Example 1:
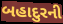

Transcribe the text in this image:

બહાદુરની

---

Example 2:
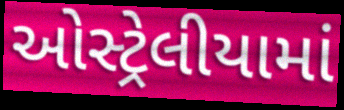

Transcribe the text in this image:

ઓસ્ટ્રેલીયામાં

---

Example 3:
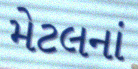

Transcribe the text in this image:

મેટલનાં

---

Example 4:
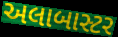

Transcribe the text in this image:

અલાબાસ્ટર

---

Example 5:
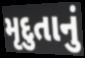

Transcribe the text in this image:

મૃદુતાનું